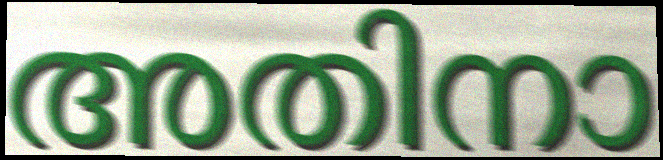
അതിനാ